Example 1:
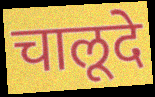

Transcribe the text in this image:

चालूदे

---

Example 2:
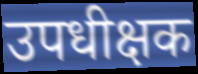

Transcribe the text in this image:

उपधीक्षक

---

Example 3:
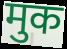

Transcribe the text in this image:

मुक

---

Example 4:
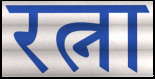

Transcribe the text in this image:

रत्ना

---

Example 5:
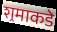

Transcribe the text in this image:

श्रमाकडे